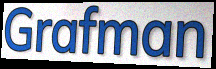
Grafman